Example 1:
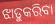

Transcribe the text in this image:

ଝାଡୁକରିବା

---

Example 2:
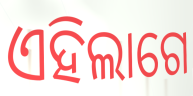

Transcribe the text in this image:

ଏହିଲାଗେ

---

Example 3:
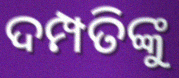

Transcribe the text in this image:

ଦମ୍ପତିଙ୍କୁ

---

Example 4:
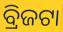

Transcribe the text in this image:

ବ୍ରିଜଟା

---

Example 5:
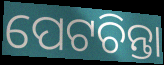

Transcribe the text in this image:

ପେଟଚିନ୍ତା